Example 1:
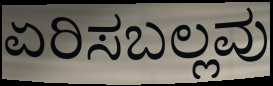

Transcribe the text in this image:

ಏರಿಸಬಲ್ಲವು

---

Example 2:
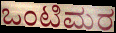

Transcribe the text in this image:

ಒಂಟಿಮರ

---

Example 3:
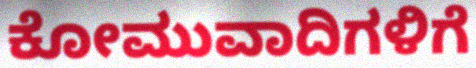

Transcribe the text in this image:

ಕೋಮುವಾದಿಗಳಿಗೆ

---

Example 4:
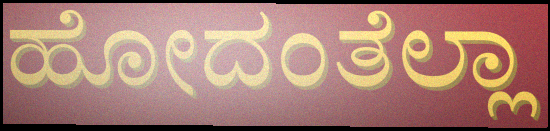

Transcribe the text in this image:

ಹೋದಂತೆಲ್ಲಾ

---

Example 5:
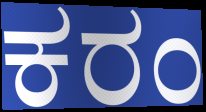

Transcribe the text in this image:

ಕರಂ